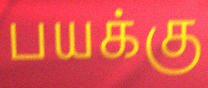
பயக்கு